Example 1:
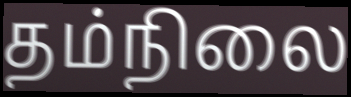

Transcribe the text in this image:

தம்நிலை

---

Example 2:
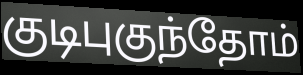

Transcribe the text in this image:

குடிபுகுந்தோம்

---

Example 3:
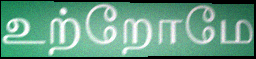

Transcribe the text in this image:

உற்றோமே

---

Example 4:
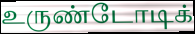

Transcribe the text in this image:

உருண்டோடிக்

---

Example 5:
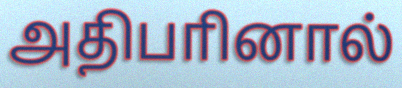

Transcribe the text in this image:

அதிபரினால்